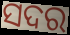
ସଦର